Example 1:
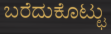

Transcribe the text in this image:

ಬರೆದುಕೊಟ್ಟು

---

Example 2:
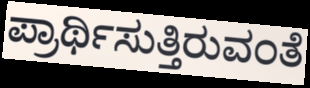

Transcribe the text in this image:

ಪ್ರಾರ್ಥಿಸುತ್ತಿರುವಂತೆ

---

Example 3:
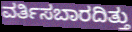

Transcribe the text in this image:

ವರ್ತಿಸಬಾರದಿತ್ತು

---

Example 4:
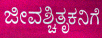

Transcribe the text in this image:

ಜೀವಶ್ಚಿತೃಕನಿಗೆ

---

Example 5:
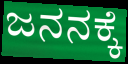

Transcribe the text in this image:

ಜನನಕ್ಕೆ